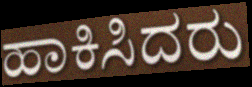
ಹಾಕಿಸಿದರು